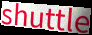
shuttle